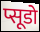
प्सूडो